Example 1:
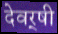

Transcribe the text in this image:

देवर्षी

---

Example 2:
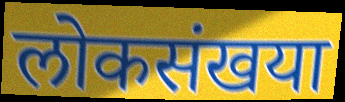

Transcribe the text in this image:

लोकसंखया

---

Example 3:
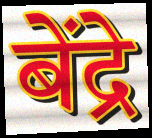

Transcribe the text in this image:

बेंद्रे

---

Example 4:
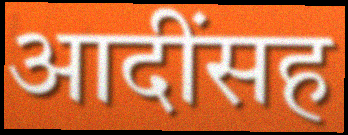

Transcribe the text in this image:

आदींसह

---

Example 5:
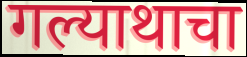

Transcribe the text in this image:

गल्याथाचा